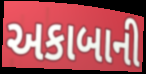
અકાબાની